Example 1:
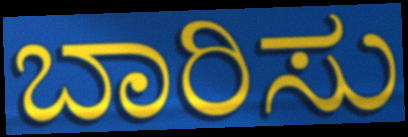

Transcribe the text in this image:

ಬಾರಿಸು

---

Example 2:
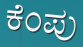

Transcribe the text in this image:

ಕೆಂಪು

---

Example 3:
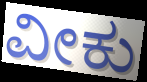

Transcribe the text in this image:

ವೀಕು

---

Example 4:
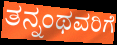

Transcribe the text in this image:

ತನ್ನಂಥವರಿಗೆ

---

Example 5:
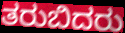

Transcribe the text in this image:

ತರುಬಿದರು